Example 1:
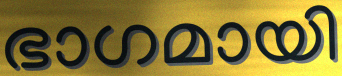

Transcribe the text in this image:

ഭാഗമായി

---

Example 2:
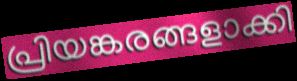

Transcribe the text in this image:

പ്രിയങ്കരങ്ങളാക്കി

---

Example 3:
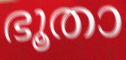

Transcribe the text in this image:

ഭൂതാ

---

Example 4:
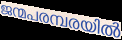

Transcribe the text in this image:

ജന്മപരമ്പരയിൽ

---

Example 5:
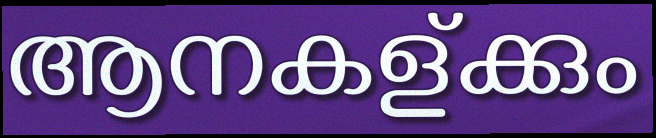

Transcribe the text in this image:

ആനകള്ക്കും